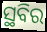
ସ୍ଥବିର